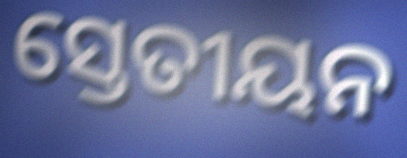
ସ୍ତେତୀୟନ